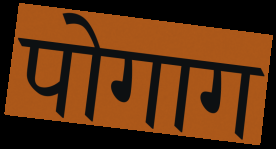
पोगाग